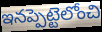
ఇనప్పెట్టెలోంచి